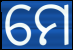
ମେ